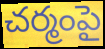
చర్మంపై